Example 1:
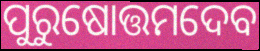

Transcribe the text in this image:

ପୁରୁଷୋତ୍ତମଦେବ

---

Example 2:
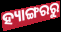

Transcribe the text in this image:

ହ୍ୟାଙ୍ଗରରୁ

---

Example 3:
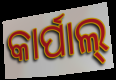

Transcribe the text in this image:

କାର୍ପାଲ୍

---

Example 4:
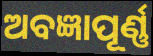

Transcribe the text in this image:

ଅବଜ୍ଞାପୂର୍ଣ୍ଣ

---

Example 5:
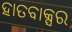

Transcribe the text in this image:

ହାତବାକ୍ସର